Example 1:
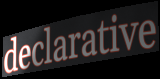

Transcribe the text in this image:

declarative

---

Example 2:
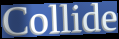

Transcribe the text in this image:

Collide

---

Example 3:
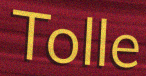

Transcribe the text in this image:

Tolle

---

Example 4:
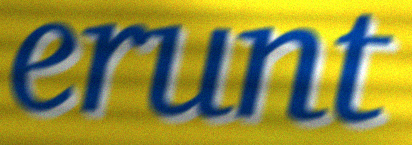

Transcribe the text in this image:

erunt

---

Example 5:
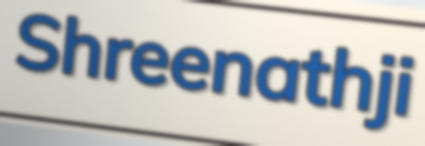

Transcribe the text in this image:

Shreenathji